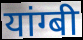
यांग्बी